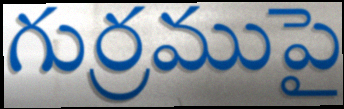
గుర్రముపై